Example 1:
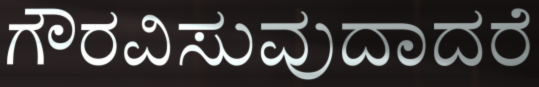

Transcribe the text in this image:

ಗೌರವಿಸುವುದಾದರೆ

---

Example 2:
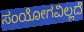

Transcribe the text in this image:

ಸಂಯೋಗವಿಲ್ಲದೆ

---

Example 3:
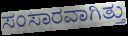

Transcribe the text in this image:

ಸಂಸಾರವಾಗಿತ್ತು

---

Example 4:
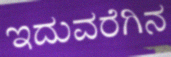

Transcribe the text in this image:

ಇದುವರೆಗಿನ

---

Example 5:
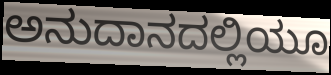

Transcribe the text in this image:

ಅನುದಾನದಲ್ಲಿಯೂ